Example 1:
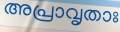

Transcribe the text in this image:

അപ്രാവൃതാഃ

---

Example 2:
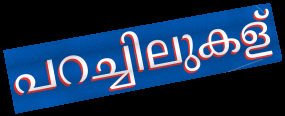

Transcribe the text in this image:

പറച്ചിലുകള്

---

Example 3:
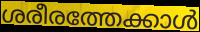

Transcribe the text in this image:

ശരീരത്തേക്കാൾ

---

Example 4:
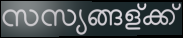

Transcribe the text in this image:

സസ്യങ്ങള്ക്ക്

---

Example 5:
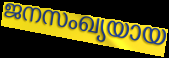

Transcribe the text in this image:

ജനസംഖ്യയായ